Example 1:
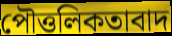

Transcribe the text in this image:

পৌত্তলিকতাবাদ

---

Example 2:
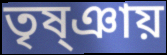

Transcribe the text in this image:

তৃষ্ঞায়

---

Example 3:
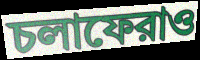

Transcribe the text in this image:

চলাফেরাও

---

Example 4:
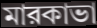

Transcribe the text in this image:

মারকাভা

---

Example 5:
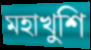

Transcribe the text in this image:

মহাখুশি